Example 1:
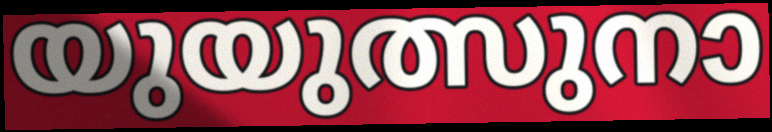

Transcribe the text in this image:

യുയുത്സുനാ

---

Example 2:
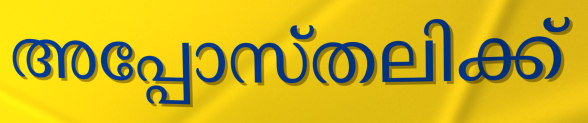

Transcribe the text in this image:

അപ്പോസ്തലിക്ക്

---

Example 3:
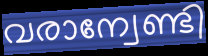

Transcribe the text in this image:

വരാന്വേണ്ടി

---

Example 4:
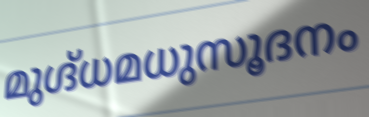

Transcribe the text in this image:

മുഗ്ദ്ധമധുസൂദനം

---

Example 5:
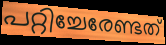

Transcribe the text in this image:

പറ്റിച്ചേരേണ്ടത്